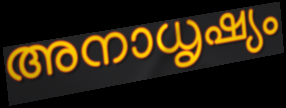
അനാധൃഷ്യം